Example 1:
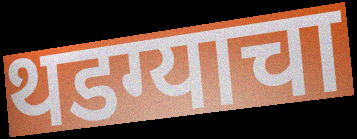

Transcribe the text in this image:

थडग्याचा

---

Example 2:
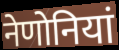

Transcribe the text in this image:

नेणोनियां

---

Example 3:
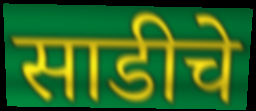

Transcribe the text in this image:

साडीचे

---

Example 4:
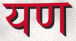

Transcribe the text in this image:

यण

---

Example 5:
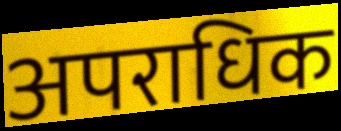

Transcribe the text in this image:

अपराधिक